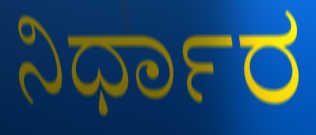
ನಿರ್ಧಾರ